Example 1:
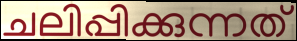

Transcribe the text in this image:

ചലിപ്പിക്കുന്നത്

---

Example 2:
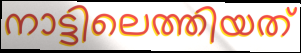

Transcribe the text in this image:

നാട്ടിലെത്തിയത്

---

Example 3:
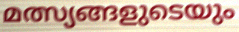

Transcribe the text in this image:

മത്സ്യങ്ങളുടെയും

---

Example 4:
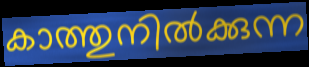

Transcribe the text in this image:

കാത്തുനിൽക്കുന്ന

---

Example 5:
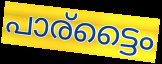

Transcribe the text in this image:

പാര്ട്ടൈം